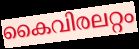
കൈവിരലറ്റം